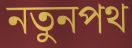
নতুনপথ